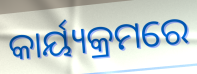
କାର୍ୟ୍ୟକ୍ରମରେ